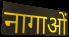
नागाओं